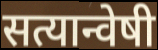
सत्यान्वेषी